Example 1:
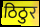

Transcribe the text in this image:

ठिठुर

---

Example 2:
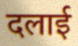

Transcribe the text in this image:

दलाई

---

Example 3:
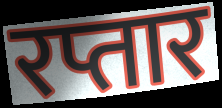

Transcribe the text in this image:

रप्तार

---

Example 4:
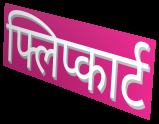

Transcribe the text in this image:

फ्लिप्कार्ट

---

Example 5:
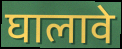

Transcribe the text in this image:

घालावे